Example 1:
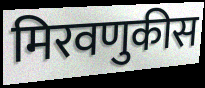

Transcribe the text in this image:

मिरवणुकीस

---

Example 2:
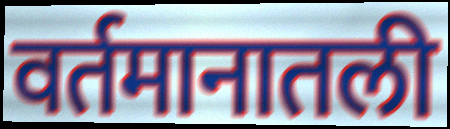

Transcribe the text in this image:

वर्तमानातली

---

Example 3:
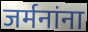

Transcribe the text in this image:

जर्मनांना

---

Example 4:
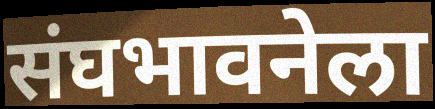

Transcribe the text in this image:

संघभावनेला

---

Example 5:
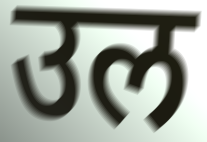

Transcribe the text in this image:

उल